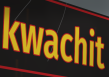
kwachit